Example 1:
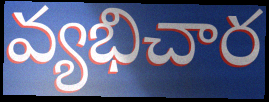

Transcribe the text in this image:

వ్యభిచార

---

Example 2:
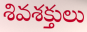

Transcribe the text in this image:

శివశక్తులు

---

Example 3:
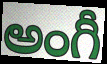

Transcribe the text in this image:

అంగీ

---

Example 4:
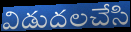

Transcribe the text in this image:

విడుదలచేసి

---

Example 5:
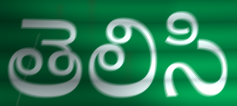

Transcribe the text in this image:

తెలిసి